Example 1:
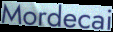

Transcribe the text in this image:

Mordecai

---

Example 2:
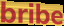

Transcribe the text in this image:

bribe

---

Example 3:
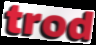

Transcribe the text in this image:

trod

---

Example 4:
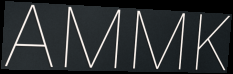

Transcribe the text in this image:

AMMK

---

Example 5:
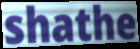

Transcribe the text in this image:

shathe